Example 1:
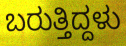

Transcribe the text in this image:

ಬರುತ್ತಿದ್ದಳು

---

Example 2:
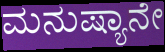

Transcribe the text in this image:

ಮನುಷ್ಯಾನೇ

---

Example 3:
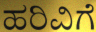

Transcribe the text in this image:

ಹರಿವಿಗೆ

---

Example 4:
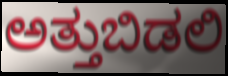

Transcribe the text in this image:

ಅತ್ತುಬಿಡಲಿ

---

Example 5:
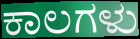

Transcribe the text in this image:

ಕಾಲಗಳು